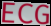
ECG